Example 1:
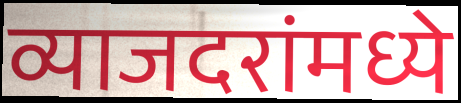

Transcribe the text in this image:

व्याजदरांमध्ये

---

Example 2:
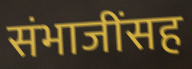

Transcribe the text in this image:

संभाजींसह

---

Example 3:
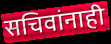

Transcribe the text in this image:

सचिवांनाही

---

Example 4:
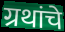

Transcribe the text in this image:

ग्रथांचे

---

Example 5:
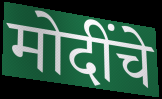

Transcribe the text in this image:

मोदींचे